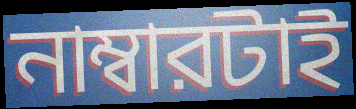
নাম্বারটাই